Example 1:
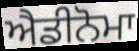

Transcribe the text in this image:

ਐਡੀਨੋਮਾ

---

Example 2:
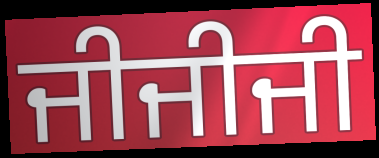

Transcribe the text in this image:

ਜੀਜੀਜੀ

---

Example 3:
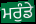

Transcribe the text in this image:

ਮਰੁੰਡੇ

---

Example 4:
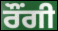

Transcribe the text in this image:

ਰੌਂਗੀ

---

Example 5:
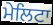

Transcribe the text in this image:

ਮੇਲਿਟਾ